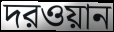
দরওয়ান